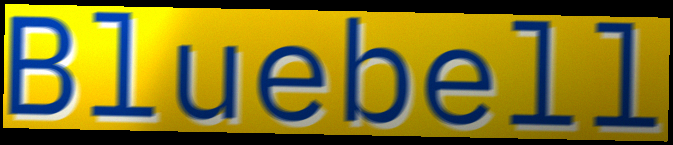
Bluebell